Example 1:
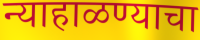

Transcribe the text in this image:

न्याहाळण्याचा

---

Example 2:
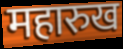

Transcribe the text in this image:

महारुख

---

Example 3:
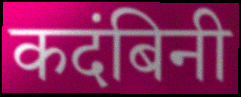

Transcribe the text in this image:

कदंबिनी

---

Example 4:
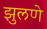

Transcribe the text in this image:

झुलणे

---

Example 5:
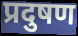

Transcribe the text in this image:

प्रदुषण